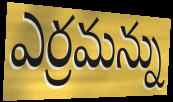
ఎర్రమన్ను